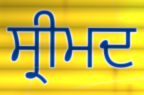
ਸ੍ਰੀਮਦ